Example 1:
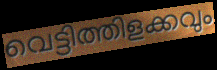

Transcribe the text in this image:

വെട്ടിത്തിളക്കവും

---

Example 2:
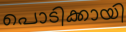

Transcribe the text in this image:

പൊടിക്കായി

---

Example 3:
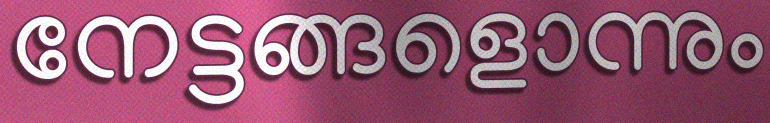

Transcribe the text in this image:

നേട്ടങ്ങളൊന്നും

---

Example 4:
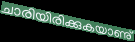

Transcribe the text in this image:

ചാരിയിരിക്കുകയാണു്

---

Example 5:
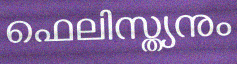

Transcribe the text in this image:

ഫെലിസ്ത്യനും